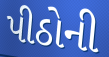
પીઠોની